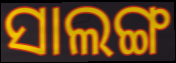
ସାଲଙ୍ଗ